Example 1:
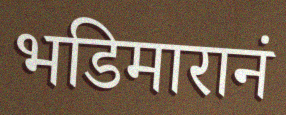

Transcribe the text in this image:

भडिमारानं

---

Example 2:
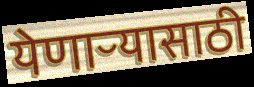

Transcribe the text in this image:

येणाऱ्यासाठी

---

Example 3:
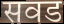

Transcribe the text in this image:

सवड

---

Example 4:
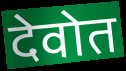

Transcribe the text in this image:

देवोत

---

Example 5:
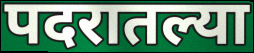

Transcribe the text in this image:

पदरातल्या